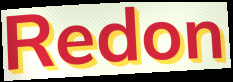
Redon